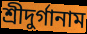
শ্রীদুর্গানাম